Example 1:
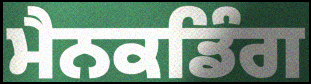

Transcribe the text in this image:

ਮੈਨਕਡਿੰਗ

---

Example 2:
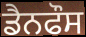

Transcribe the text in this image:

ਡੈਨਫੌਸ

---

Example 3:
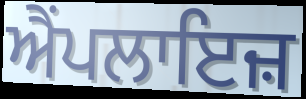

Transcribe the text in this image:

ਐਂਪਲਾਇਜ਼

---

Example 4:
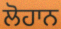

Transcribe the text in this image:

ਲੋਹਾਨ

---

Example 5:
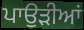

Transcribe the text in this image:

ਪਾਉੜੀਆਂ